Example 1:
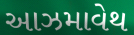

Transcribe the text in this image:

આઝમાવેથ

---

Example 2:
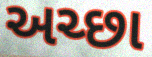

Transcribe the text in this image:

અચ્છા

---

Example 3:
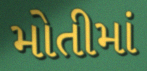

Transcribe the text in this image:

મોતીમાં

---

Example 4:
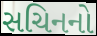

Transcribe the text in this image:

સચિનનો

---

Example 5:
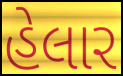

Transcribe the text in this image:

હેલાર